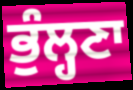
ਭੁੰਲ੍ਹਣਾ